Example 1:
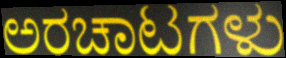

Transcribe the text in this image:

ಅರಚಾಟಗಳು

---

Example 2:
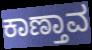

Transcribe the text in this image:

ಕಾಣ್ತಾವ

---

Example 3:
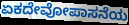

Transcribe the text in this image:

ಏಕದೇವೋಪಾಸನೆಯ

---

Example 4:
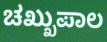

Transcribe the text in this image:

ಚಖ್ಖುಪಾಲ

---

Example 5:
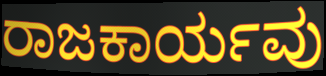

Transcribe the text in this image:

ರಾಜಕಾರ್ಯವು